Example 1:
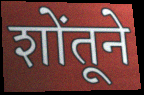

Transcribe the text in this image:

शोंतूने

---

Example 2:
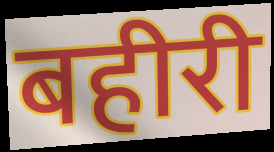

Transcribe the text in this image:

बहीरी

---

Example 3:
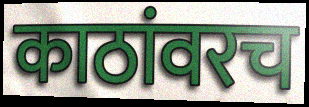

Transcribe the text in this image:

काठांवरच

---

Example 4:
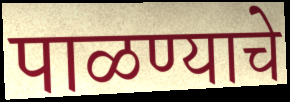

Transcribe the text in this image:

पाळण्याचे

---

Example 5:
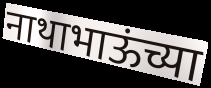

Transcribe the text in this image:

नाथाभाऊंच्या